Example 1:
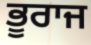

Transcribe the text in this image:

ਭੂਰਾਜ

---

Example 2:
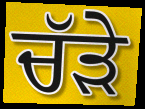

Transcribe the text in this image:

ਚੱੜੇ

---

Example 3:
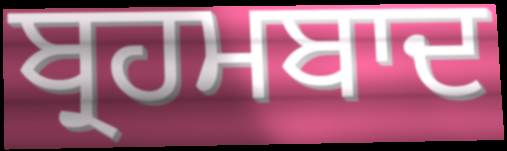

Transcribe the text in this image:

ਬ੍ਰਹਮਬਾਦ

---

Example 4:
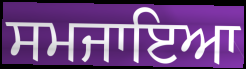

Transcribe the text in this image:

ਸਮਜਾਇਆ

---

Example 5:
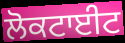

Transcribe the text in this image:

ਲੋਕਟਾਈਟ